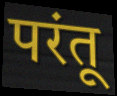
परंतू